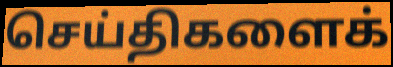
செய்திகளைக்